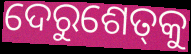
ଦେରୁଶେତ୍‌କୁ